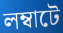
লম্বাটে